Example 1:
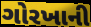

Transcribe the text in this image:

ગોરખાની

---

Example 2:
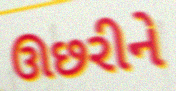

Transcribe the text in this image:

ઊછરીને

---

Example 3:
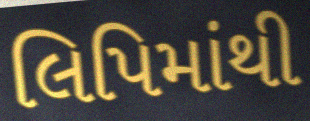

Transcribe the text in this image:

લિપિમાંથી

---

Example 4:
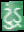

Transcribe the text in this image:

ટુંડ્ર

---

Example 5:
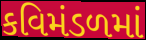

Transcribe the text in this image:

કવિમંડળમાં